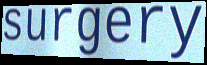
surgery